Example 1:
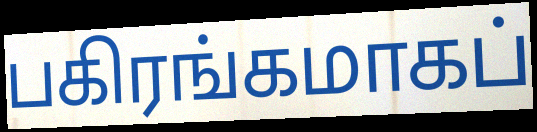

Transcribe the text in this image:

பகிரங்கமாகப்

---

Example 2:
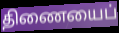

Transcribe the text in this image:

திணையைப்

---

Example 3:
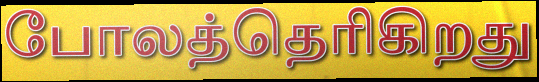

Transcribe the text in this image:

போலத்தெரிகிறது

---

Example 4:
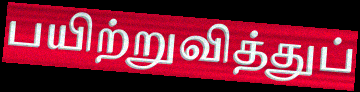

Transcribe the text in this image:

பயிற்றுவித்துப்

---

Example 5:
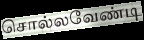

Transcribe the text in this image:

சொல்லவேண்டி